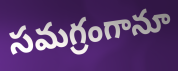
సమగ్రంగానూ